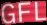
GFL